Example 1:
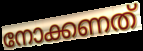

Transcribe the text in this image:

നോക്കണത്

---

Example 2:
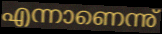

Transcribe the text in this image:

എന്നാണെന്നു്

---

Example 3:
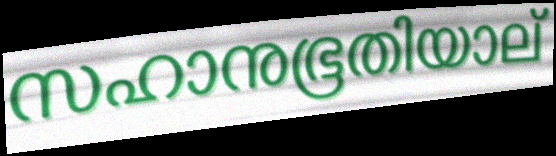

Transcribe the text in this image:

സഹാനുഭൂതിയാല്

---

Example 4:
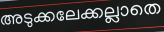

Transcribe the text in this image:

അടുക്കലേക്കല്ലാതെ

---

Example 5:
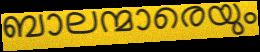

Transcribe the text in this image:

ബാലന്മാരെയും